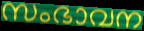
സംഭാവന